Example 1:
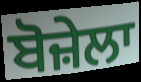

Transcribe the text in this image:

ਬੋਜ਼ੇਲਾ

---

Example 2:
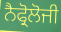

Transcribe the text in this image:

ਨੈਫ੍ਰੋਲੋਜੀ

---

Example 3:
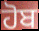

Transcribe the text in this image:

ਹੋਬ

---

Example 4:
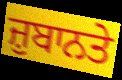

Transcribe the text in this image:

ਜ਼ੁਬਾਨਤੇ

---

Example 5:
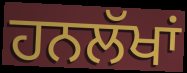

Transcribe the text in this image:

ਹਨਲੱਖਾਂ